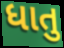
ધાતુ